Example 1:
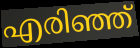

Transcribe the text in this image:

എരിഞ്ഞ്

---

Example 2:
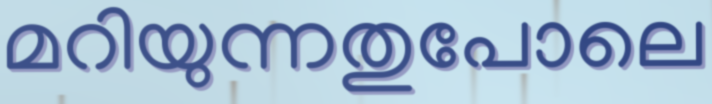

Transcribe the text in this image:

മറിയുന്നതുപോലെ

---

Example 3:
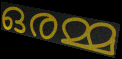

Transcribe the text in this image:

ഒരമ്മ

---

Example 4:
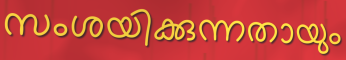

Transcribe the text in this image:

സംശയിക്കുന്നതായും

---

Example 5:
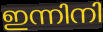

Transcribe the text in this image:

ഇന്നിനി